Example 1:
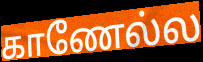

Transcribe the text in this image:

காணேல்ல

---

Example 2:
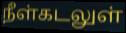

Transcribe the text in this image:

நீள்கடலுள்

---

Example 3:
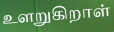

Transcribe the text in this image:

உளறுகிறாள்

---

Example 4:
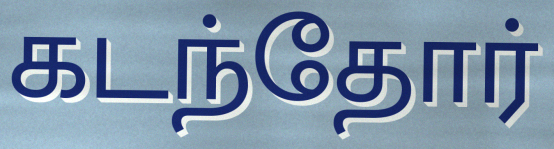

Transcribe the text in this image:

கடந்தோர்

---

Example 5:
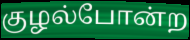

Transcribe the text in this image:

குழல்போன்ற